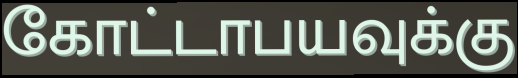
கோட்டாபயவுக்கு